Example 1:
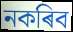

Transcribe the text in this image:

নকৰিব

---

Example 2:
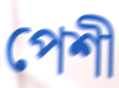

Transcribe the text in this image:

পেশী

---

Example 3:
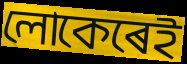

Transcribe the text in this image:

লোকেৰেই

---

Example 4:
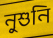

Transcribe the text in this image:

নুশুনি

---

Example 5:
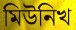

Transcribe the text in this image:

মিউনিখ